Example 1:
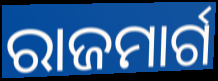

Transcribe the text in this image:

ରାଜମାର୍ଗ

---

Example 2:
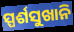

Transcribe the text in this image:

ସ୍ପର୍ଶସୁଖାନି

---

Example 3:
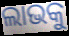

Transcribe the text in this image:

ଲାଭକୁ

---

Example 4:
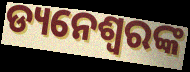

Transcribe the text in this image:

ଡ୍ୟନେଶ୍ୱରଙ୍କ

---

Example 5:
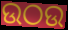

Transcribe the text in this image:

ଉଠଉ